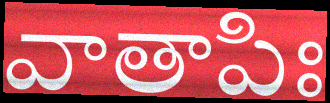
వాతాపిః